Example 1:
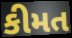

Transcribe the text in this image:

કીમત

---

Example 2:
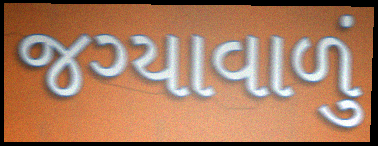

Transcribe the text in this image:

જગ્યાવાળું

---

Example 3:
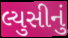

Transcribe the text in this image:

લ્યુસીનું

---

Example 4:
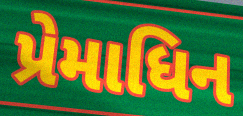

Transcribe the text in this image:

પ્રેમાધિન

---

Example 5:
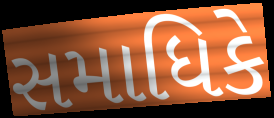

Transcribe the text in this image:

સમાધિકે